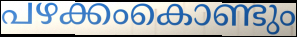
പഴക്കംകൊണ്ടും